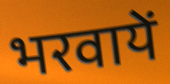
भरवायें